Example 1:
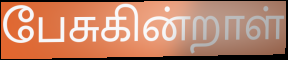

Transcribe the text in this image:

பேசுகின்றாள்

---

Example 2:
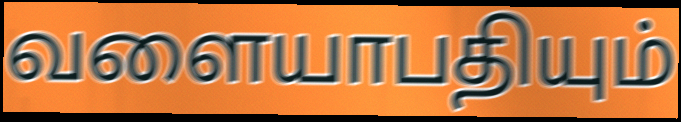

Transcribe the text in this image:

வளையாபதியும்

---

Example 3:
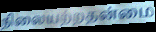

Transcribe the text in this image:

நிலையற்றதன்மை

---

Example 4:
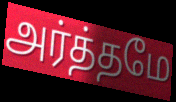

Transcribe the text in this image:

அர்த்தமே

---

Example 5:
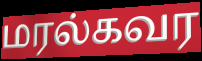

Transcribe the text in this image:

மரல்கவர